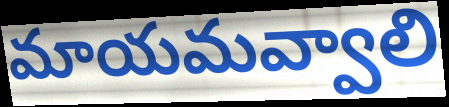
మాయమవ్వాలి